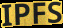
IPFS